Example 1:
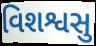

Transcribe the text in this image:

વિશશ્વસુ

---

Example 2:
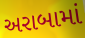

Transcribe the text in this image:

અરાબામાં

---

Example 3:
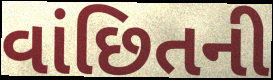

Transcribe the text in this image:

વાંછિતની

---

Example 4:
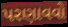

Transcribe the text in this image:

પરણાવવો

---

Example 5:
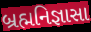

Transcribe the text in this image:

બ્રહ્મનિજ્ઞાસા